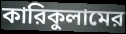
কারিকুলামের